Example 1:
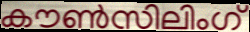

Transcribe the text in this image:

കൗൺസിലിംഗ്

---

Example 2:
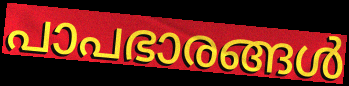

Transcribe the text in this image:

പാപഭാരങ്ങൾ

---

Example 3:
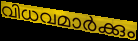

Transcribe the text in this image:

വിധവമാർക്കും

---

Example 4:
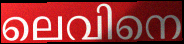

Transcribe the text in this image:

ലെവിനെ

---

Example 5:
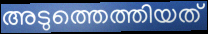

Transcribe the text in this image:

അടുത്തെത്തിയത്